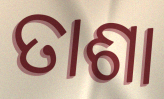
ତାଶା